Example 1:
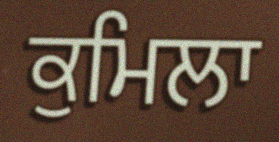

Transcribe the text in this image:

ਕੁਮਿਲਾ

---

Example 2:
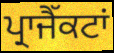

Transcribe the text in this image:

ਪ੍ਰਾਜੈੱਕਟਾਂ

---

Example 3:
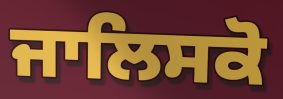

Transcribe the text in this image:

ਜਾਲਿਸਕੋ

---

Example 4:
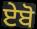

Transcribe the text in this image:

ਏਬੋ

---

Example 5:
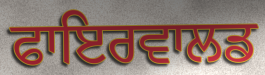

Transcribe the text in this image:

ਫਾਇਰਵਾਲਡ